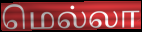
மெல்லா